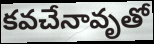
కవచేనావృతో